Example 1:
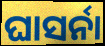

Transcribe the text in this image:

ଘାସର୍ନା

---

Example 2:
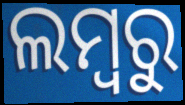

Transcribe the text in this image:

ଲମ୍ବରୁ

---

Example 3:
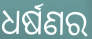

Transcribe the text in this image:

ଧର୍ଷଣର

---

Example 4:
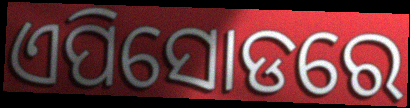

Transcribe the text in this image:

ଏପିସୋଡରେ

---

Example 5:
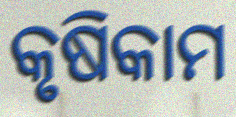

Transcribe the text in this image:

କୃଷିକାମ